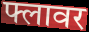
फ्लावर